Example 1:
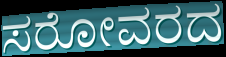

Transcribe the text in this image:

ಸರೋವರದ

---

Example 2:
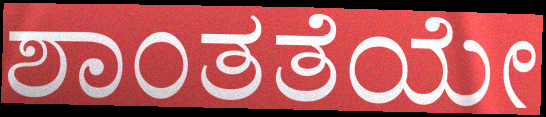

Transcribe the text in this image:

ಶಾಂತತೆಯೇ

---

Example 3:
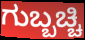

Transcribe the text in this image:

ಗುಬ್ಬಚ್ಚಿ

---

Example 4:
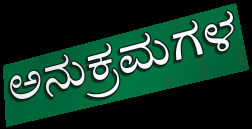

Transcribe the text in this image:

ಅನುಕ್ರಮಗಳ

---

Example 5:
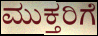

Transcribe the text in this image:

ಮುಕ್ತರಿಗೆ